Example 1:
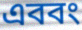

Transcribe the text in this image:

এববং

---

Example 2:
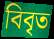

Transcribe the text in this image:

বিবৃত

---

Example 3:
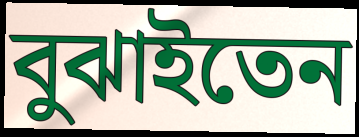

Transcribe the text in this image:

বুঝাইতেন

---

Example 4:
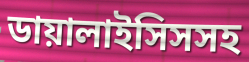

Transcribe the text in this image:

ডায়ালাইসিসসহ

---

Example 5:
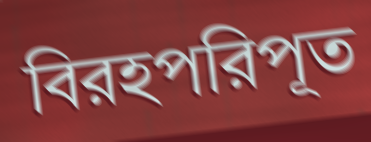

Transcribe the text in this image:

বিরহপরিপূত